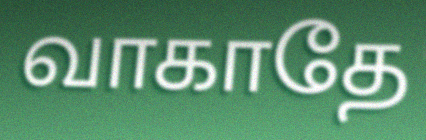
வாகாதே